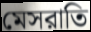
মেসরাতি